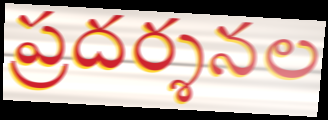
ప్రదర్శనల